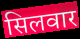
सिलवार